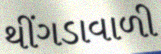
થીંગડાવાળી